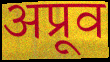
अप्रूव